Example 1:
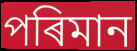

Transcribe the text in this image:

পৰিমান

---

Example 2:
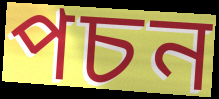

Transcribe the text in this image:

পচন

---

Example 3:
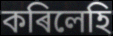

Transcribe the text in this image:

কৰিলেহি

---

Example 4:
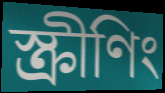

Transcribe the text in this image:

স্ক্ৰীণিং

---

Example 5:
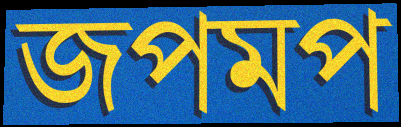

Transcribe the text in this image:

জপমপ